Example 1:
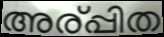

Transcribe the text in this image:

അര്പ്പിത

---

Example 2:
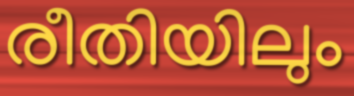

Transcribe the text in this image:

രീതിയിലും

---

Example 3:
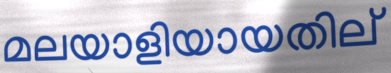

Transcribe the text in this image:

മലയാളിയായതില്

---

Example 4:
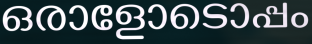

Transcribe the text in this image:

ഒരാളോടൊപ്പം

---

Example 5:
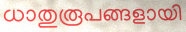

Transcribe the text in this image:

ധാതുരൂപങ്ങളായി